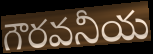
గౌరవనీయ